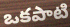
ఒకపాటి